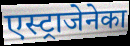
एस्‍ट्राजेनेका